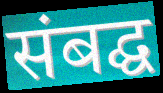
संबद्घ